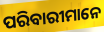
ପରିବାରୀମାନେ